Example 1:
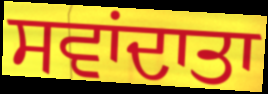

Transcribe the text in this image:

ਸਵਾਂਦਾਤਾ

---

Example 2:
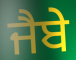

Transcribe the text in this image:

ਜੈਬੇ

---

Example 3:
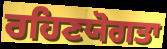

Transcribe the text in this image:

ਰਹਿਣਯੋਗਤਾ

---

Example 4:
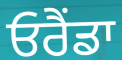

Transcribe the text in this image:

ਓਰੈਂਡਾ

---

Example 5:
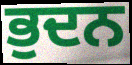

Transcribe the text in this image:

ਭੁਦਨ